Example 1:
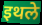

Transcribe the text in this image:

इथले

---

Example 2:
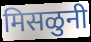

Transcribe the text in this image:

मिसळुनी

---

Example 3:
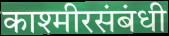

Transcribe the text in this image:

काश्मीरसंबंधी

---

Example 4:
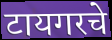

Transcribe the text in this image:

टायगरचे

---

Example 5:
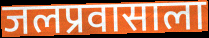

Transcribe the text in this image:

जलप्रवासाला